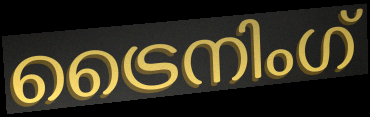
ട്രൈനിംഗ്